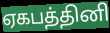
ஏகபத்தினி